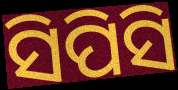
ସିପିସି